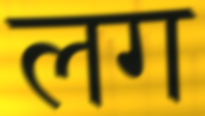
लग